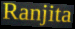
Ranjita